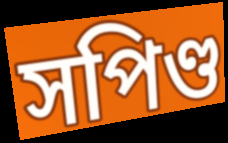
সপিণ্ড